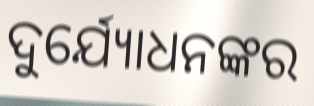
ଦୁର୍ଯ୍ୟୋଧନଙ୍କର